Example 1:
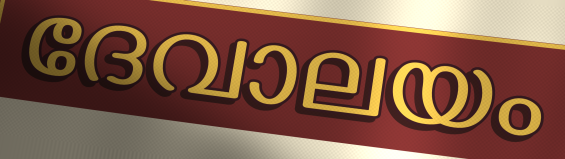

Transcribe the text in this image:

ദേവാലയം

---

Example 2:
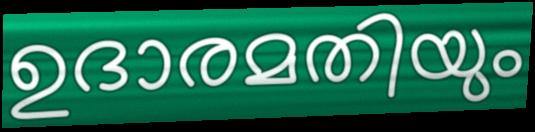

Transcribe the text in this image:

ഉദാരമതിയും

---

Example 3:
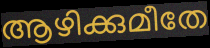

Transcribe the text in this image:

ആഴിക്കുമീതേ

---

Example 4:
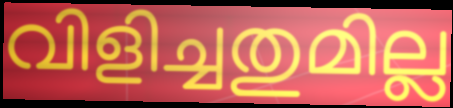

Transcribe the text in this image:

വിളിച്ചതുമില്ല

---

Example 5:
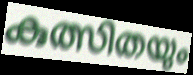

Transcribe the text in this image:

കുത്സിതയും